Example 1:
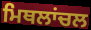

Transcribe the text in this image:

ਮਿਥਲਾਂਚਲ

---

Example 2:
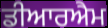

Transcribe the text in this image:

ਡੀਆਰਐਮ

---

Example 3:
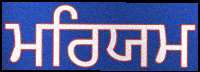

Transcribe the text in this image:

ਮਰਿਯਮ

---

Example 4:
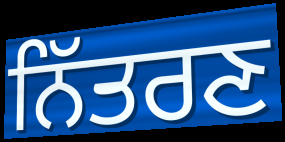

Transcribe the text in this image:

ਨਿੱਤਰਣ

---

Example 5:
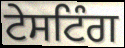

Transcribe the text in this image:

ਟੇਸਟਿੰਗ